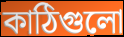
কাঠিগুলো